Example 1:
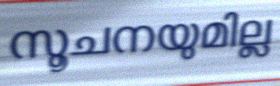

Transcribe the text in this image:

സൂചനയുമില്ല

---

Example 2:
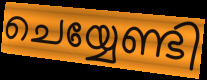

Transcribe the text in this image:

ചെയ്യേണ്ടി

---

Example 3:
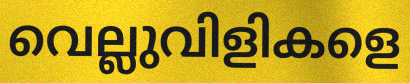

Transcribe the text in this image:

വെല്ലുവിളികളെ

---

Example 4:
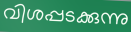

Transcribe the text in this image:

വിശപ്പടക്കുന്നു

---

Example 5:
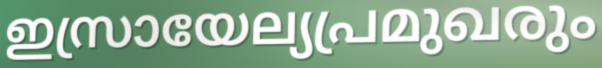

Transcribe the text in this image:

ഇസ്രായേല്യപ്രമുഖരും